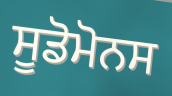
ਸੂਡੋਮੋਨਸ